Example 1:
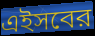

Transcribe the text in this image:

এইসবের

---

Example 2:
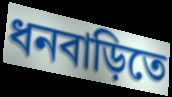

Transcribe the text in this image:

ধনবাড়িতে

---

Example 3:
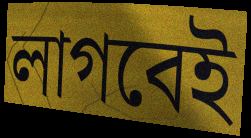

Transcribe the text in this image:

লাগবেই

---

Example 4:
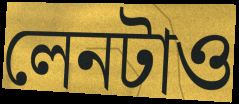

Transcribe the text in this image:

লেনটাও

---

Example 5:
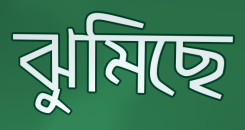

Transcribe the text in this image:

ঝুমিছে